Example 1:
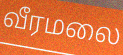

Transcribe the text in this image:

வீரமலை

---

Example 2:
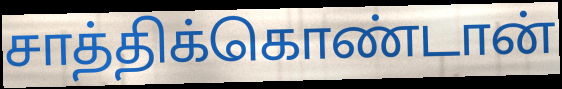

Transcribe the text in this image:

சாத்திக்கொண்டான்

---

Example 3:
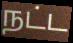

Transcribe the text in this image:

நட்ட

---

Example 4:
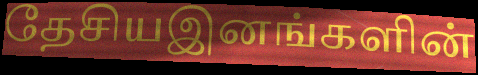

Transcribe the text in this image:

தேசியஇனங்களின்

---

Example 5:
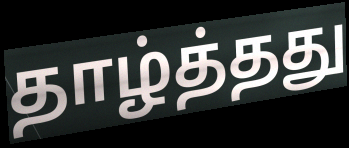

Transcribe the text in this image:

தாழ்த்தது